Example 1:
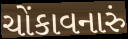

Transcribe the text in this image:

ચોંકાવનારું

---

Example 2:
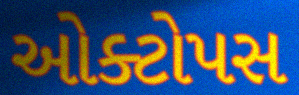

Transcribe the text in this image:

ઓક્ટોપસ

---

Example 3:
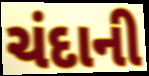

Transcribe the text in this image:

ચંદાની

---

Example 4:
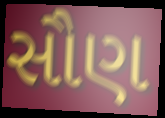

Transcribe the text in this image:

સૌણ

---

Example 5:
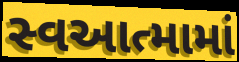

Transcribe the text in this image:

સ્વઆત્મામાં